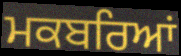
ਮਕਬਰਿਆਂ